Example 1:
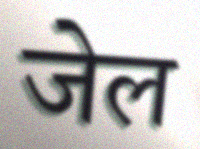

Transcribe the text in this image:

जेल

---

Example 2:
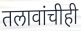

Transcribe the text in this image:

तलावांचीही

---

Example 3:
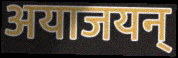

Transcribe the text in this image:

अयाजयन्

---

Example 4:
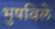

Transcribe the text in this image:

भुषविले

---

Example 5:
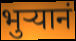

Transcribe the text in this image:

भुऱ्यानं